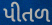
પીતળ